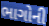
ભાગોની